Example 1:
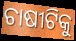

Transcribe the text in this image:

ଚାଷୀଟିକୁ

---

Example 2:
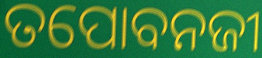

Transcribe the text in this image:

ତପୋବନଜୀ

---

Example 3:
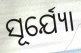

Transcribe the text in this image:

ସୂର୍ଯ୍ୟୋ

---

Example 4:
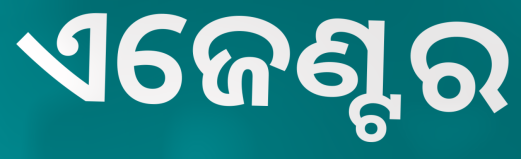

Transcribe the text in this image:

ଏଜେଣ୍ଟର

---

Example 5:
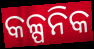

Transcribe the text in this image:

କଳ୍ପନିକ